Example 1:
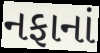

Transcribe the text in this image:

નફાનાં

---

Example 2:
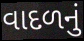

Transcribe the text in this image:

વાદળનું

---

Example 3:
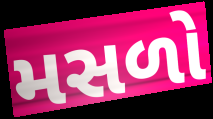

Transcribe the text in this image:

મસળો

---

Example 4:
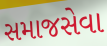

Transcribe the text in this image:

સમાજસેવા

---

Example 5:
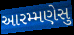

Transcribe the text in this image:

આરમ્મણેસુ